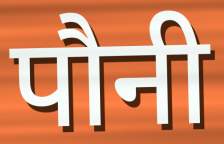
पौनी